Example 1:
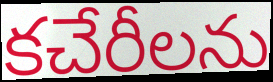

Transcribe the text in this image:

కచేరీలను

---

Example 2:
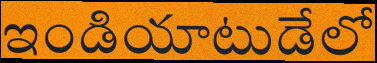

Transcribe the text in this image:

ఇండియాటుడేలో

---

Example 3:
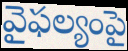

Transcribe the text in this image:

వైఫల్యంపై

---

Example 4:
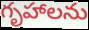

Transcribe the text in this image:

గృహాలను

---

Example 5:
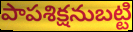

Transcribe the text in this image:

పాపశిక్షనుబట్టి